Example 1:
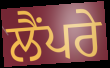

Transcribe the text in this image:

ਲੈਂਪਰੇ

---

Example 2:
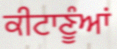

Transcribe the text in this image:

ਕੀਟਾਣੂੰਆਂ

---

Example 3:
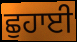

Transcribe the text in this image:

ਛੁਹਾਈ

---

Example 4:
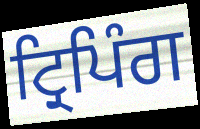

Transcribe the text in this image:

ਟ੍ਰਿਪਿੰਗ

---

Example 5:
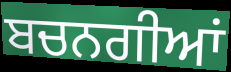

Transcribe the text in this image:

ਬਚਨਗੀਆਂ